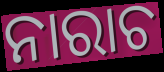
ନାରାଚ